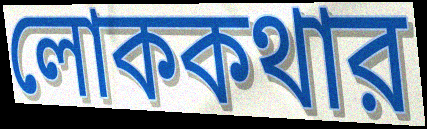
লোককথার